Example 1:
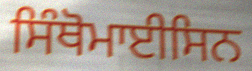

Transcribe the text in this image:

ਸਿੰਥੋਮਾਈਸਿਨ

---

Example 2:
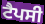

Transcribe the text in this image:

ਟੈਪਸੀ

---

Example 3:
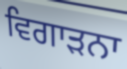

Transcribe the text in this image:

ਵਿਗਾੜਨਾ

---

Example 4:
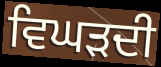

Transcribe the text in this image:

ਵਿਘੜਦੀ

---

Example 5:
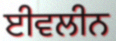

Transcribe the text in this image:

ਈਵਲੀਨ